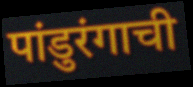
पांडुरंगाची